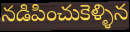
నడిపించుకెళ్ళిన